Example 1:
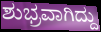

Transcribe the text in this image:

ಶುಭ್ರವಾಗಿದ್ದು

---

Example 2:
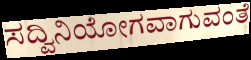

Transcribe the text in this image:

ಸದ್ವಿನಿಯೋಗವಾಗುವಂತೆ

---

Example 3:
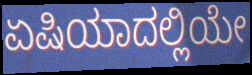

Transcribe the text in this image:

ಏಷಿಯಾದಲ್ಲಿಯೇ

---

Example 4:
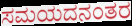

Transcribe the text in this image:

ಸಮಯದನಂತರ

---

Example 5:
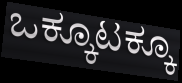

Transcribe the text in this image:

ಒಕ್ಕೂಟಕ್ಕೂ